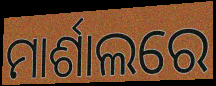
ମାର୍ଶାଲରେ